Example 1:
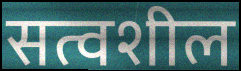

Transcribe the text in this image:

सत्वशील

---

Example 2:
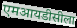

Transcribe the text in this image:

एमआयडीसीला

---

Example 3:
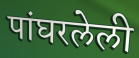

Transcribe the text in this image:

पांघरलेली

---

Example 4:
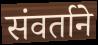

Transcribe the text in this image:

संवर्ताने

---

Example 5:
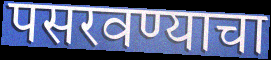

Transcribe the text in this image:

पसरवण्याचा